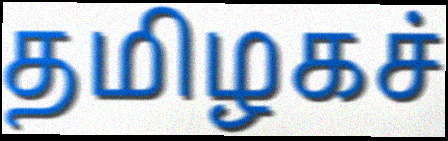
தமிழகச்